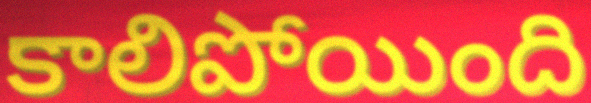
కాలిపోయింది